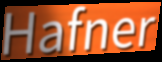
Hafner